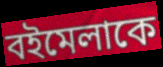
বইমেলাকে